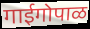
गाईगोपाळ